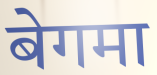
बेगमा